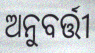
ଅନୁବର୍ତ୍ତୀ